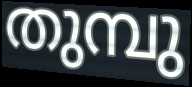
തുമ്പു